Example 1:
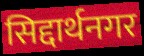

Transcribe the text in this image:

सिद्दार्थनगर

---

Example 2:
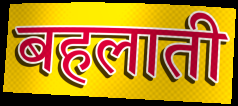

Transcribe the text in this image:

बहलाती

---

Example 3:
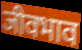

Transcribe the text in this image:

जीवभाव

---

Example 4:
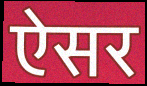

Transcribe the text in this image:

ऐसर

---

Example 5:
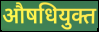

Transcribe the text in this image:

औषधियुक्त